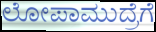
ಲೋಪಾಮುದ್ರೆಗೆ